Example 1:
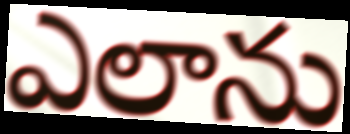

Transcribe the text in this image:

ఎలాను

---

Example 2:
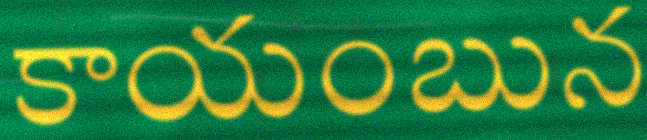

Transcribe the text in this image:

కాయంబున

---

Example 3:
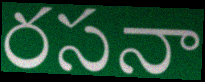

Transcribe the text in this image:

రసనా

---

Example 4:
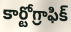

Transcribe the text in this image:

కార్టోగ్రాఫిక్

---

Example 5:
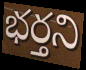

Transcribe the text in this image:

భర్తని